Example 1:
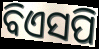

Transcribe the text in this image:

ବିଏସପି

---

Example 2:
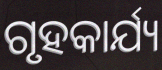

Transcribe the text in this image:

ଗୃହକାର୍ଯ୍ୟ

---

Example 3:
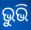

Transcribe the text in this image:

ଭୁଭି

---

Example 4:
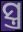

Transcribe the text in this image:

ସ୍ତ୍ର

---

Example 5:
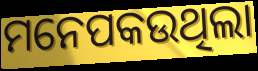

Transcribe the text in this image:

ମନେପକଉଥିଲା